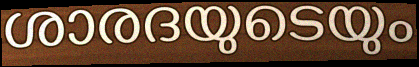
ശാരദയുടെയും